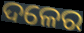
ଦଳେର